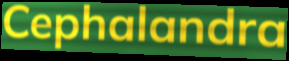
Cephalandra